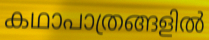
കഥാപാത്രങ്ങളിൽ